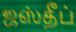
ஜஸ்தீப்